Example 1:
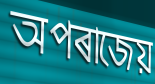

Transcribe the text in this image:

অপৰাজেয়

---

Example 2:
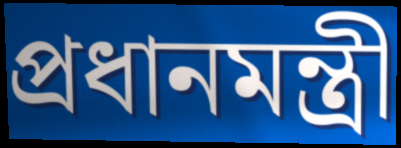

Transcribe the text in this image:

প্ৰধানমন্ত্ৰী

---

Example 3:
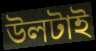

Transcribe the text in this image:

উলটাই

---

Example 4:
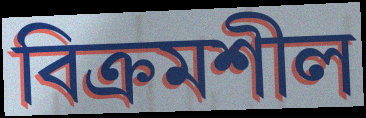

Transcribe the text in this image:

বিক্ৰমশীল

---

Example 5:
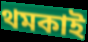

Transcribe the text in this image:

থমকাই